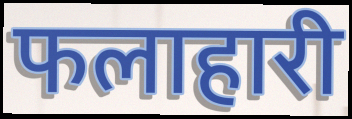
फलाहारी